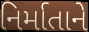
નિર્માતાને